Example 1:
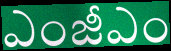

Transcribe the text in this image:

ఎంజీఎం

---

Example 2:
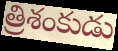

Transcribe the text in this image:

త్రిశంకుడు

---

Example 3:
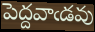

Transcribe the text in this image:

పెద్దవాఁడవు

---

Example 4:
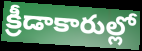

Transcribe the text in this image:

క్రీడాకారుల్లో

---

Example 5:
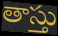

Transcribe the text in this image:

తాస్తు